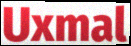
Uxmal